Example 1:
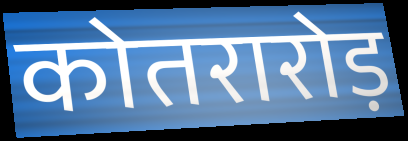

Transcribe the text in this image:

कोतरारोड़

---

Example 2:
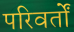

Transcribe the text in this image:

परिवर्तों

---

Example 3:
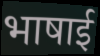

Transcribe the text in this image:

भाषाई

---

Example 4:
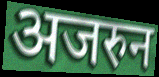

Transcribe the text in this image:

अजरुन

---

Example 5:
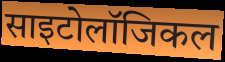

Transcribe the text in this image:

साइटोलॉजिकल